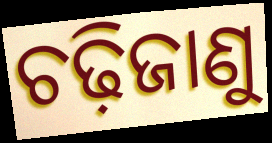
ଚଢ଼ିଜାଣୁ